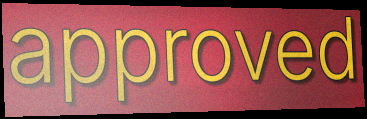
approved